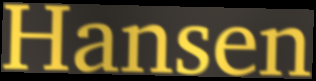
Hansen